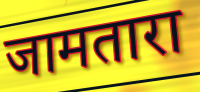
जामतारा